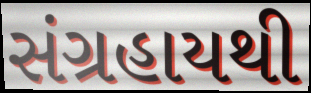
સંગ્રહાયથી